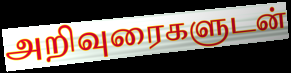
அறிவுரைகளுடன்